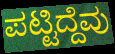
ಪಟ್ಟಿದ್ದೆವು